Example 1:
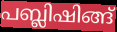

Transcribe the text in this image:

പബ്ലിഷിങ്ങ്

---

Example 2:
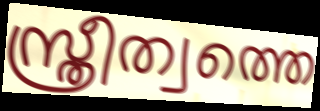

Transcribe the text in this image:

സ്ത്രീത്വത്തെ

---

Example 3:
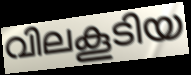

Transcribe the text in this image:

വിലകൂടിയ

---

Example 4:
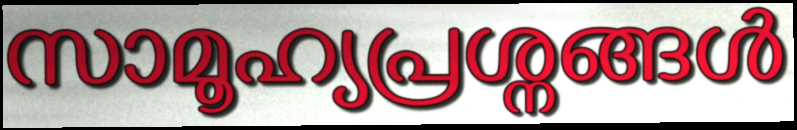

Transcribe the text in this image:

സാമൂഹ്യപ്രശ്നങ്ങൾ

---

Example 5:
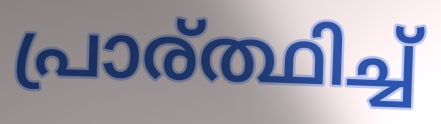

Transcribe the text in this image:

പ്രാര്ത്ഥിച്ച്